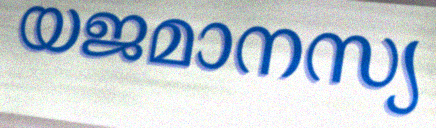
യജമാനസ്യ